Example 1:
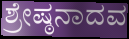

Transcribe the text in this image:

ಶ್ರೇಷ್ಠನಾದವ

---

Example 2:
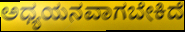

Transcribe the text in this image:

ಅಧ್ಯಯನವಾಗಬೇಕಿದೆ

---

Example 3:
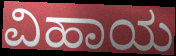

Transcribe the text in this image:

ವಿಹಾಯ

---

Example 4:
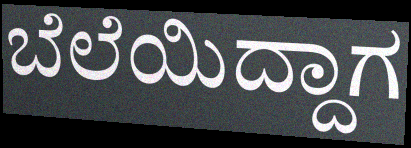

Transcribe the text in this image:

ಬೆಲೆಯಿದ್ದಾಗ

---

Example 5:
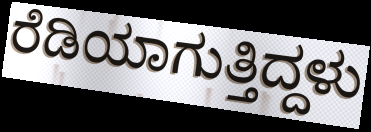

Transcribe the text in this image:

ರೆಡಿಯಾಗುತ್ತಿದ್ದಳು